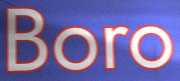
Boro